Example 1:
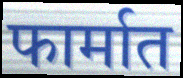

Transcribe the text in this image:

फार्मात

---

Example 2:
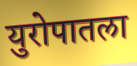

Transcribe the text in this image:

युरोपातला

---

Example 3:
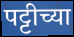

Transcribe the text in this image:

पट्टीच्या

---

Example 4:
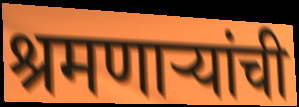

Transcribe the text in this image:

श्रमणाऱ्यांची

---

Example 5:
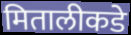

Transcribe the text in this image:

मितालीकडे